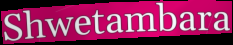
Shwetambara